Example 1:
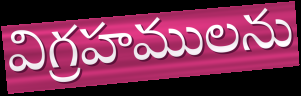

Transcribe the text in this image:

విగ్రహములను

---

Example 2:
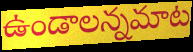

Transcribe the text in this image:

ఉండాలన్నమాట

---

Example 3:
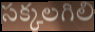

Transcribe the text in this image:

సక్కలగిలి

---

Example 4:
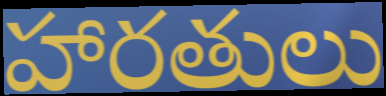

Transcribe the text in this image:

హారతులు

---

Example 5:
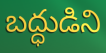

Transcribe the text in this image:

బద్ధుడిని